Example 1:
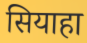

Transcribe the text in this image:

सियाहा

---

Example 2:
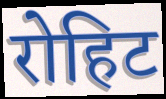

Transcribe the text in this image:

रोहिट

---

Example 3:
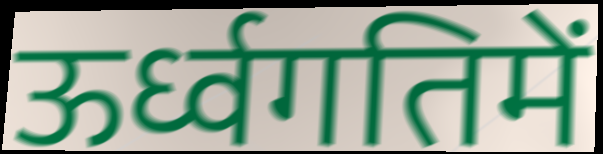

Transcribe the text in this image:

ऊर्ध्वगतिमें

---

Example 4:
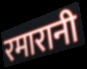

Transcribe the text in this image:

रमारानी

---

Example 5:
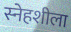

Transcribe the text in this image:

स्नेहशीला